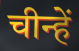
चीन्हें